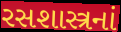
રસશાસ્ત્રનાં